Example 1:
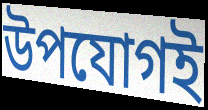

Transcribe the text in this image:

উপযোগই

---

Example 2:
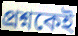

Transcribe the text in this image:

প্রশ্নকেই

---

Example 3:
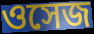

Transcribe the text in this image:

ওসেজ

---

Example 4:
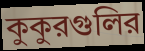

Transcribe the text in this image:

কুকুরগুলির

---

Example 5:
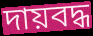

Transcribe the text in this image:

দায়বদ্ধ